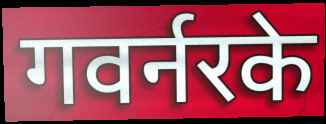
गवर्नरके